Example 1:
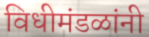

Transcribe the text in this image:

विधीमंडळांनी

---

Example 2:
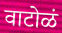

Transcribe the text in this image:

वाटोळं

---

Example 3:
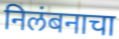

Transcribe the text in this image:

निलंबनाचा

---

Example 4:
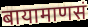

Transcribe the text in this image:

बायामाणसं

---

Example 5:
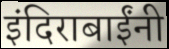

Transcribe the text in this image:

इंदिराबाईंनी